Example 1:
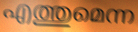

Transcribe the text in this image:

എത്തുമെന്ന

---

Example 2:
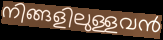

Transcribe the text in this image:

നിങ്ങളിലുള്ളവൻ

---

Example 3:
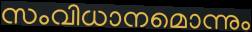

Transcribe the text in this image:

സംവിധാനമൊന്നും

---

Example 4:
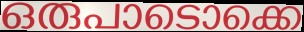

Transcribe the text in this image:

ഒരുപാടൊക്കെ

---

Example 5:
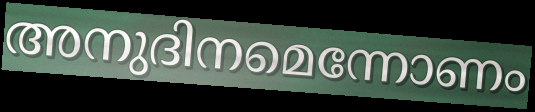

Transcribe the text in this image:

അനുദിനമെന്നോണം